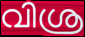
വിശ്ര